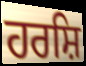
ਹਰਸ਼ਿ